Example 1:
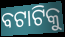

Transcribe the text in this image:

ବଟାଟିକୁ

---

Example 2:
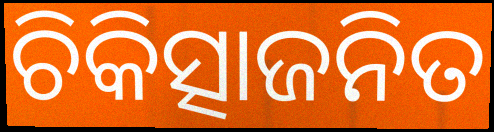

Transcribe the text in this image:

ଚିକିତ୍ସାଜନିତ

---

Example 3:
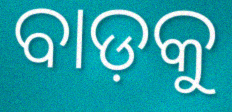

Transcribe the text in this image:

ବାଡ଼କୁ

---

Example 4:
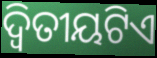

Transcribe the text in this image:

ଦ୍ୱିତୀୟଟିଏ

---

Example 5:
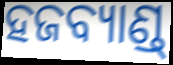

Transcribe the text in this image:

ହଜବ୍ୟାଣ୍ଡ୍